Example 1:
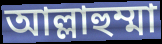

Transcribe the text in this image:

আল্লাহুম্মা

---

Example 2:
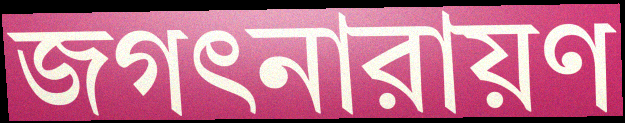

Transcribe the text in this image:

জগৎনারায়ণ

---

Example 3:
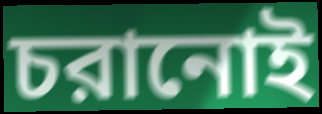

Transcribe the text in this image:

চরানোই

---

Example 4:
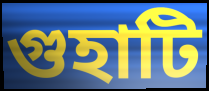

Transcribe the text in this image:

গুহাটি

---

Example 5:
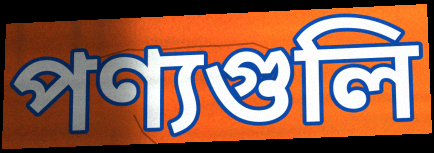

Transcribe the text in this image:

পণ্যগুলি